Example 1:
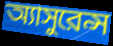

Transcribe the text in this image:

অ্যাসুরেন্স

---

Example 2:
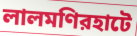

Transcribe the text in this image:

লালমণিরহাটে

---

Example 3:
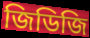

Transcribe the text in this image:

জিডিজি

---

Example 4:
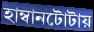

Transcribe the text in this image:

হাম্বানটোটায়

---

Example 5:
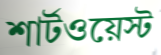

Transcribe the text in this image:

শার্টওয়েস্ট